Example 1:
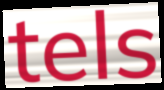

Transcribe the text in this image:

tels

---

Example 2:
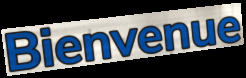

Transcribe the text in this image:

Bienvenue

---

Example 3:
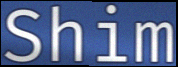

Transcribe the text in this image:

Shim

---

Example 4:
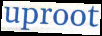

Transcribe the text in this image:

uproot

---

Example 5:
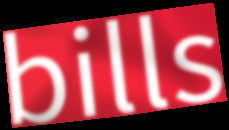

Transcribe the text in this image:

bills